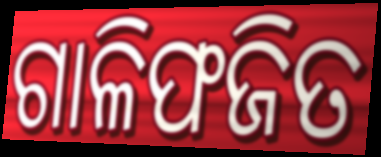
ଗାଳିଫଜିତ